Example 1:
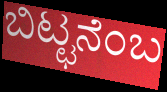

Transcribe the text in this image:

ಬಿಟ್ಟನೆಂಬ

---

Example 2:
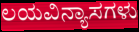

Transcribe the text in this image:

ಲಯವಿನ್ಯಾಸಗಳು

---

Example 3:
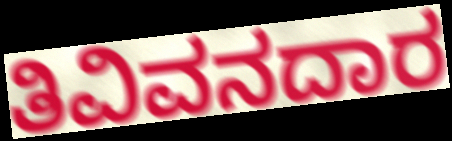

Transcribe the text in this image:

ತಿವಿವನದಾರ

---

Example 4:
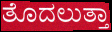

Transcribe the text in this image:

ತೊದಲುತ್ತಾ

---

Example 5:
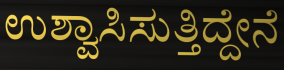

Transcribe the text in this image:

ಉಶ್ವಾಸಿಸುತ್ತಿದ್ದೇನೆ